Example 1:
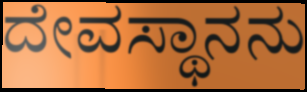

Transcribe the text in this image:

ದೇವಸ್ಥಾನನು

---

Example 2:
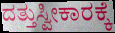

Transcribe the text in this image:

ದತ್ತುಸ್ವೀಕಾರಕ್ಕೆ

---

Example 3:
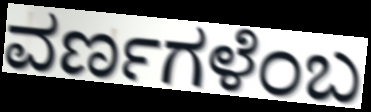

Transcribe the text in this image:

ವರ್ಣಗಳೆಂಬ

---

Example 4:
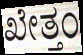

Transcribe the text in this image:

ಖೇತ್ತಂ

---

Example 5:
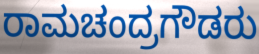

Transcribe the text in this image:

ರಾಮಚಂದ್ರಗೌಡರು